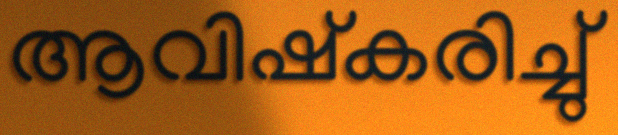
ആവിഷ്കരിച്ചു്